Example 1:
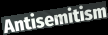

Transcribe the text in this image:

Antisemitism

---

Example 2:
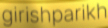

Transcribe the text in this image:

girishparikh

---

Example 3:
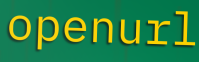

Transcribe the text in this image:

openurl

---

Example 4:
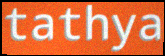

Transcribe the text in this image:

tathya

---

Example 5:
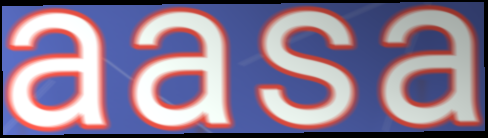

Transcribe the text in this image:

aasa